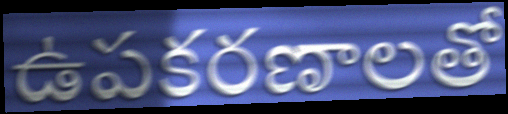
ఉపకరణాలతో